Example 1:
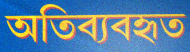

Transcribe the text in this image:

অতিব্যবহৃত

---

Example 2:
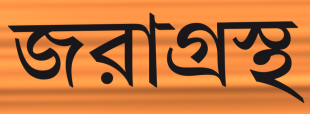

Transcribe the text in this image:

জরাগ্রস্থ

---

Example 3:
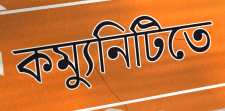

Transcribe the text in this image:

কম্যুনিটিতে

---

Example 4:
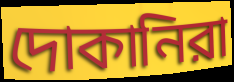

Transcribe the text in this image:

দোকানিরা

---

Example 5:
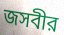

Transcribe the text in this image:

জসবীর